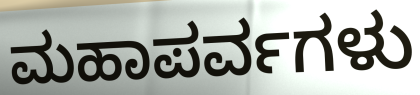
ಮಹಾಪರ್ವಗಳು